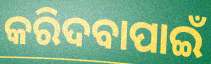
କରିଦବାପାଇଁ